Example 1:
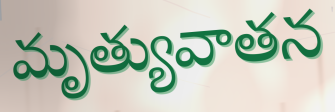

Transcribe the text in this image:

మృత్యువాతన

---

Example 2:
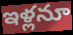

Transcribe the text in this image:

ఇళ్లనూ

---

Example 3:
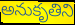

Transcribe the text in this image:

అనుకృతిని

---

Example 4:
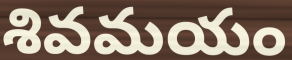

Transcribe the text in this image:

శివమయం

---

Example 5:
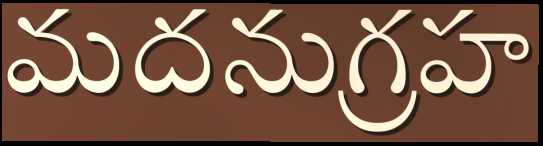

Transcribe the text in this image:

మదనుగ్రహ